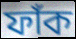
ফাঁক